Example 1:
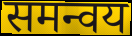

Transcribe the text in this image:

समन्वय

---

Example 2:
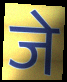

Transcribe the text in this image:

जे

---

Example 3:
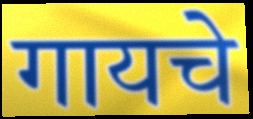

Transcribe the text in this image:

गायचे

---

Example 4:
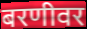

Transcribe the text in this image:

बरणीवर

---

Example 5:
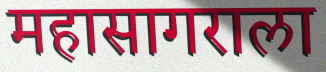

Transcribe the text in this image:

महासागराला